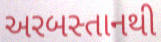
અરબસ્તાનથી